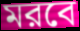
মরবে